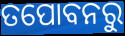
ତପୋବନରୁ